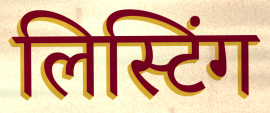
लिस्‍टिंग